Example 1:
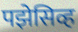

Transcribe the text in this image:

पझेसिव्ह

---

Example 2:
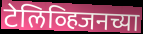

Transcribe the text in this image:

टेलिव्हिजनच्या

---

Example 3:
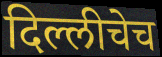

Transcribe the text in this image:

दिल्लीचेच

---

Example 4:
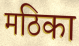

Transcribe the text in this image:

मठिका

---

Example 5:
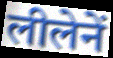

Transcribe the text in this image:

लीलेनें